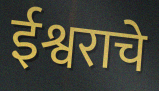
ईश्वराचे